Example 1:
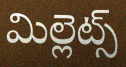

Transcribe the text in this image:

మిల్లెట్స్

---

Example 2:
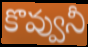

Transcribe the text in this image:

కొవ్వునీ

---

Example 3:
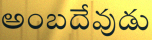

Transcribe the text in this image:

అంబదేవుడు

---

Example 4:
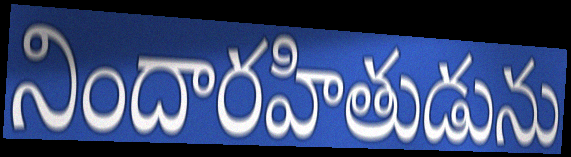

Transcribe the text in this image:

నిందారహితుడును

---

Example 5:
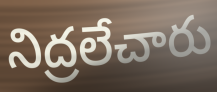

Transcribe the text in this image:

నిద్రలేచారు